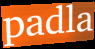
padla